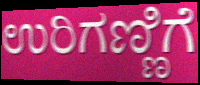
ಉರಿಗಣ್ಣಿಗೆ